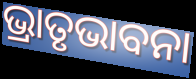
ଭ୍ରାତୃଭାବନା